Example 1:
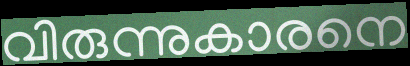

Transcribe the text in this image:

വിരുന്നുകാരനെ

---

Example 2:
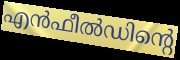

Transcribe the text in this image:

എൻഫീൽഡിന്റെ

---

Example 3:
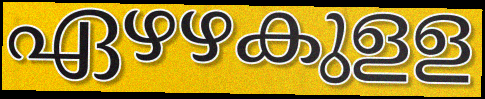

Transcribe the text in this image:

ഏഴഴകുളള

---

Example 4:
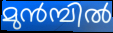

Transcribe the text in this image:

മുൻമ്പിൽ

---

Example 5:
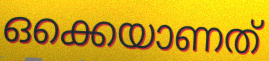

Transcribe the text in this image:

ഒക്കെയാണത്